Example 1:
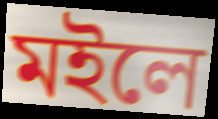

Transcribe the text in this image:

মইলে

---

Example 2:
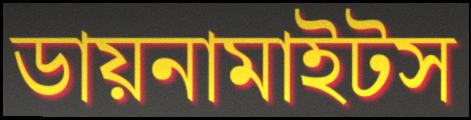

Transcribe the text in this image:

ডায়নামাইটস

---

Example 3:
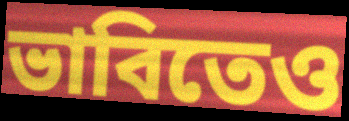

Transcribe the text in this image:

ভাবিতেও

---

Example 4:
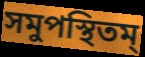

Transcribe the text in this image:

সমুপস্থিতম্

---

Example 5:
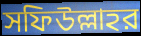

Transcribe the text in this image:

সফিউল্লাহর